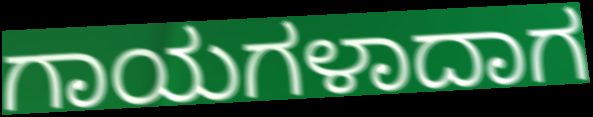
ಗಾಯಗಳಾದಾಗ